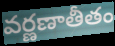
వర్ణణాతీతం